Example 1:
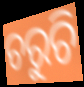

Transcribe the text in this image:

ଚରୁଚି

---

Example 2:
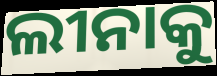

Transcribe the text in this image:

ଲୀନାକୁ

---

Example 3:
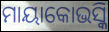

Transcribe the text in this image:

ମାୟାକୋଭସ୍କି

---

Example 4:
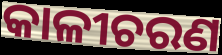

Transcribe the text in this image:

କାଳୀଚରଣ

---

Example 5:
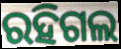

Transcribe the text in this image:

ରହିଗଲ